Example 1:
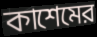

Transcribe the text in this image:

কাশেমের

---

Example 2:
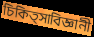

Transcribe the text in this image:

চিকিত্সাবিজ্ঞানী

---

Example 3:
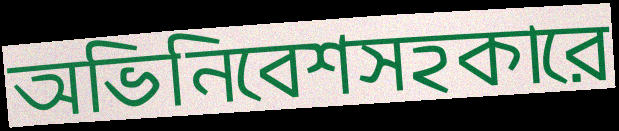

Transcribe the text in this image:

অভিনিবেশসহকারে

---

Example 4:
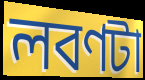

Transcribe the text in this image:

লবণটা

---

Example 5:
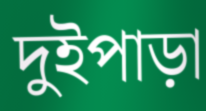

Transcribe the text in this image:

দুইপাড়া